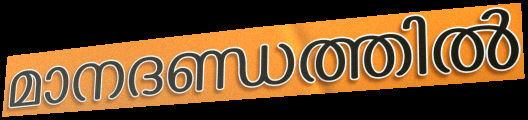
മാനദണ്ഡത്തിൽ